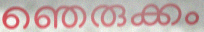
ഞെരുക്കം